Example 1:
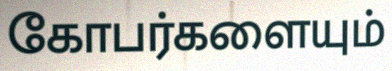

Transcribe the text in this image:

கோபர்களையும்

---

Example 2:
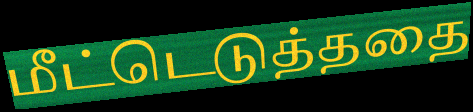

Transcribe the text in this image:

மீட்டெடுத்ததை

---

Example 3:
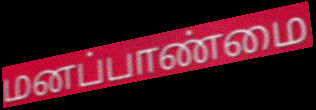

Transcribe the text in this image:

மனப்பாண்மை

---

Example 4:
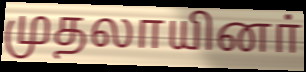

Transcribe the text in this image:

முதலாயினர்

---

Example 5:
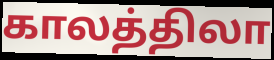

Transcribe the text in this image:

காலத்திலா